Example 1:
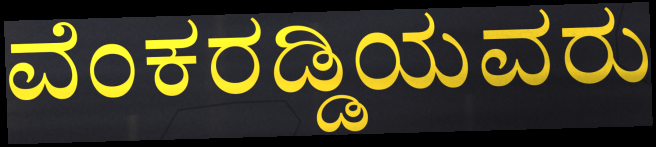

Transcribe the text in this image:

ವೆಂಕರಡ್ಡಿಯವರು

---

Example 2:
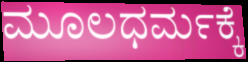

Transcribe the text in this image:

ಮೂಲಧರ್ಮಕ್ಕೆ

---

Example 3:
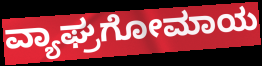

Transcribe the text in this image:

ವ್ಯಾಘ್ರಗೋಮಾಯ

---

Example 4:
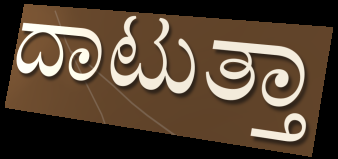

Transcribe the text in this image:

ದಾಟುತ್ತಾ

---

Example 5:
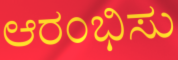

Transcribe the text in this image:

ಆರಂಭಿಸು